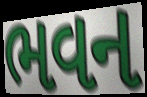
ભવન